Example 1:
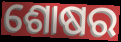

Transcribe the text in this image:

ଶୋଷର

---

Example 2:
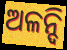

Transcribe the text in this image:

ଅଳନ୍ଦି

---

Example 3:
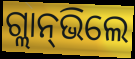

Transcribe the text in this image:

ଗ୍ଲାନ୍‌ଭିଲେ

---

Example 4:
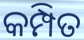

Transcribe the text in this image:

କମ୍ପିତ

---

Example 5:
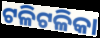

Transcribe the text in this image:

ଟଳିଟଳିକା